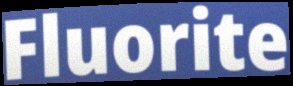
Fluorite